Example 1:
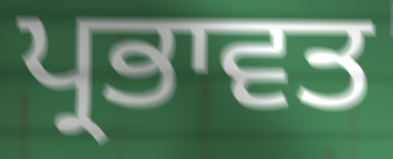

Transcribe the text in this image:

ਪ੍ਰਭਾਵਤ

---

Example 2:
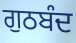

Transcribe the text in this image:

ਗੁਠਬੰਦ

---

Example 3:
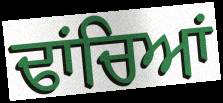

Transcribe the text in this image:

ਢਾਂਚਿਆਂ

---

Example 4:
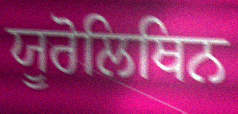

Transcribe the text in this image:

ਯੂਰੋਲਿਥਿਨ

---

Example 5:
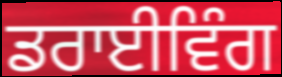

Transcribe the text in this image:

ਡਰਾਈਵਿੰਗ